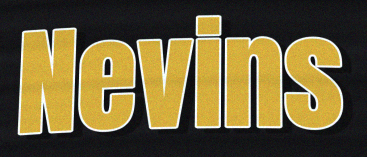
Nevins